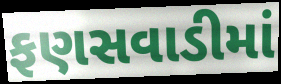
ફણસવાડીમાં